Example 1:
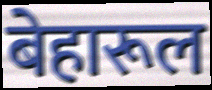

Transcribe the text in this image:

बेहारूल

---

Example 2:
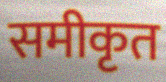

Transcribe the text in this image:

समीकृत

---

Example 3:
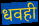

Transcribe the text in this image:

धवही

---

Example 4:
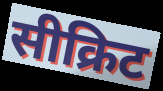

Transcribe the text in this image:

सीक्रिट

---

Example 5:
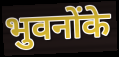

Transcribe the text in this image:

भुवनोंके